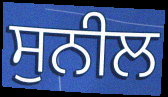
ਸੁਨੀਲ